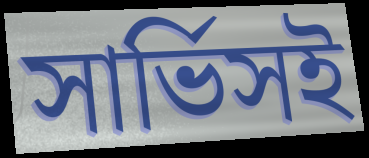
সার্ভিসই